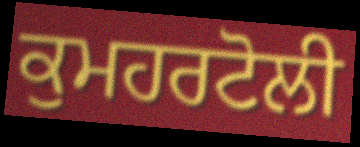
ਕੁਮਹਰਟੋਲੀ